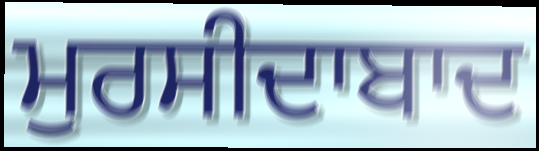
ਮੁਰਸੀਦਾਬਾਦ